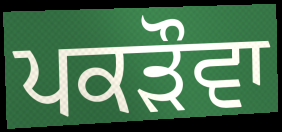
ਪਕੜੌਵਾ